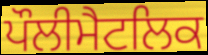
ਪੌਲੀਮੈਟਲਿਕ